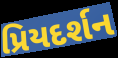
પ્રિયદર્શન